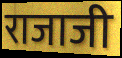
राजाजी